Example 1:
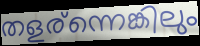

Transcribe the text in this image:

തളര്ന്നെങ്കിലും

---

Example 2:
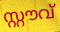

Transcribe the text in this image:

സ്റ്റൗവ്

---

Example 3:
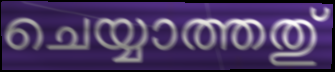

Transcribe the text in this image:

ചെയ്യാത്തതു്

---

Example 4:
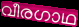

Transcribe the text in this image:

വീരഗാഥ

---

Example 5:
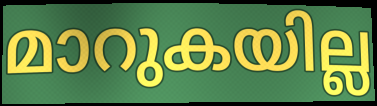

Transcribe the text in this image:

മാറുകയില്ല